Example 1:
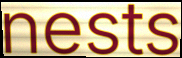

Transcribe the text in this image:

nests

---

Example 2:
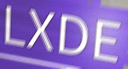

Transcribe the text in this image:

LXDE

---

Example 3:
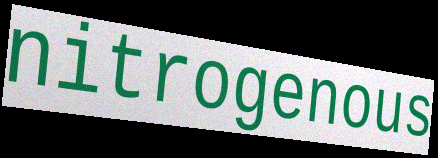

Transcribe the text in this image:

nitrogenous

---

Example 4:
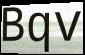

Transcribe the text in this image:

Bqv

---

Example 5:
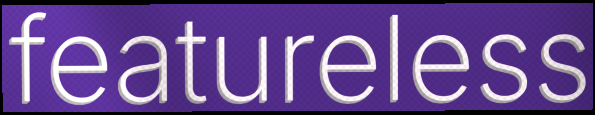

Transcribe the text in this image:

featureless